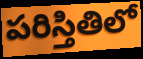
పరిస్తితిలో